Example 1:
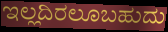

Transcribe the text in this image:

ಇಲ್ಲದಿರಲೂಬಹುದು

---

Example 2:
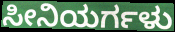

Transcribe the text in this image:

ಸೀನಿಯರ್ಗಳು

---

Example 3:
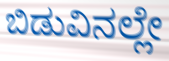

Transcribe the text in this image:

ಬಿಡುವಿನಲ್ಲೇ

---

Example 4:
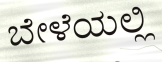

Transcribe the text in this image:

ಬೇಳೆಯಲ್ಲಿ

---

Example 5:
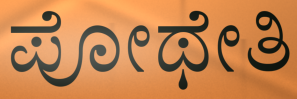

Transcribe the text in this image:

ಪೋಥೇತಿ